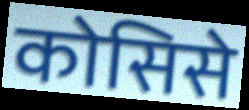
कोसिसे